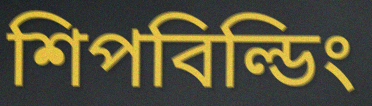
শিপবিল্ডিং